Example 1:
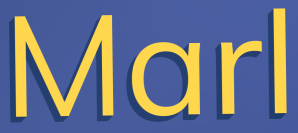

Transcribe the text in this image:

Marl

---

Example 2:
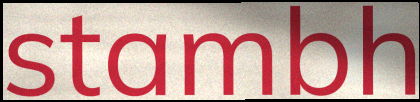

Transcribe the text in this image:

stambh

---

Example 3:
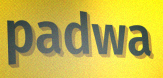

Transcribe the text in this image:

padwa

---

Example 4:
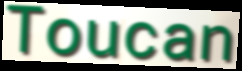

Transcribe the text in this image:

Toucan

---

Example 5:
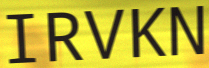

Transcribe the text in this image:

IRVKN